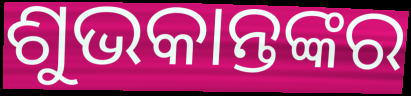
ଶୁଭକାନ୍ତଙ୍କର